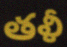
తళీ